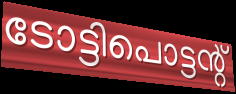
ടോട്ടിപൊട്ടന്റ്